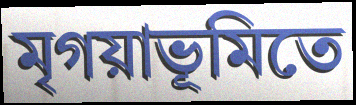
মৃগয়াভূমিতে